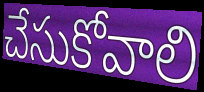
చేసుకోవాలి